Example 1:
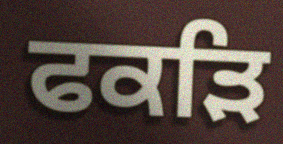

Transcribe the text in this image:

ਫਕੜਿ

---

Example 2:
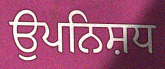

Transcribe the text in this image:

ਉਪਨਿਸ਼ਧ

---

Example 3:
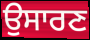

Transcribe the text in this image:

ਉਸਾਰਣ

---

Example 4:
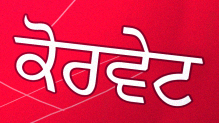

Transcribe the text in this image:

ਕੋਰਵੇਟ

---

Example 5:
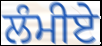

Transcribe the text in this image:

ਲੰਮੀਏ